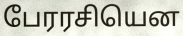
பேரரசியென